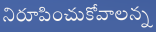
నిరూపించుకోవాలన్న